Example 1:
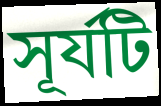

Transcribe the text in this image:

সূর্যটি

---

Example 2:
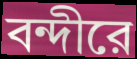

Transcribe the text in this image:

বন্দীরে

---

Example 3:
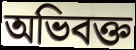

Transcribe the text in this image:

অভিবক্ত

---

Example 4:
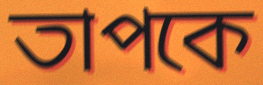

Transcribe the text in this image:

তাপকে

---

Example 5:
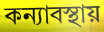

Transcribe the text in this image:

কন্যাবস্থায়